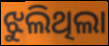
ଝୁଲିଥିଲା